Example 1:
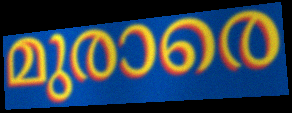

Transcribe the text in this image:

മുരാരെ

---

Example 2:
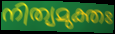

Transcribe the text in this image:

നിത്യമുക്തഃ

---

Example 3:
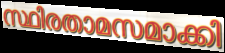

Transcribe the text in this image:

സ്ഥിരതാമസമാക്കി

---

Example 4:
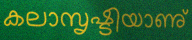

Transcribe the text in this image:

കലാസൃഷ്ടിയാണു്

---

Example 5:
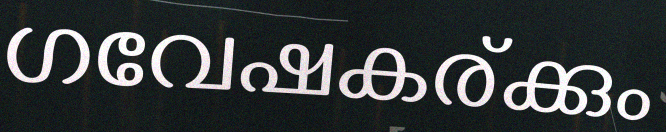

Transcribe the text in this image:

ഗവേഷകര്ക്കും